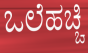
ಒಲೆಹಚ್ಚಿ